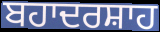
ਬਹਾਦਰਸ਼ਾਹ